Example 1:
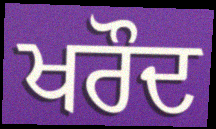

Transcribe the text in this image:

ਖਰੌਦ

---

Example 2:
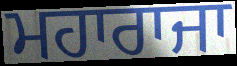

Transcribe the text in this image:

ਮਹਾਰਾਜਾ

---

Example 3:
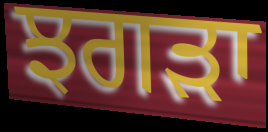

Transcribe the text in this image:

ਝਗੜਾ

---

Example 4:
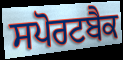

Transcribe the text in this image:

ਸਪੋਰਟਬੈਕ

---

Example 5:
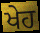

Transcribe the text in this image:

ਖੇਹ